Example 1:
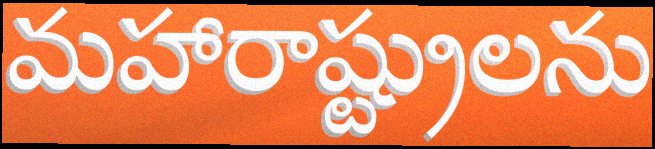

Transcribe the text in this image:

మహారాష్ట్రులను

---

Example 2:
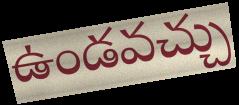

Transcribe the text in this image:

ఉండవచ్చు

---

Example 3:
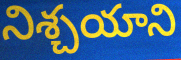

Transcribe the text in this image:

నిశ్చయాని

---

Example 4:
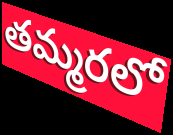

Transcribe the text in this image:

తమ్మరలో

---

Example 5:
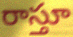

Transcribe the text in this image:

రాస్తూ